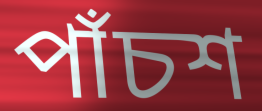
পাঁচশ